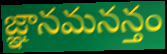
జ్ఞానమనన్తం